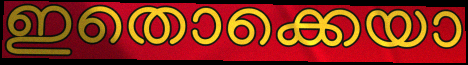
ഇതൊക്കെയാ